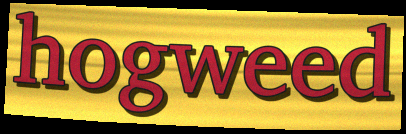
hogweed